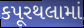
કપૂરથલામાં